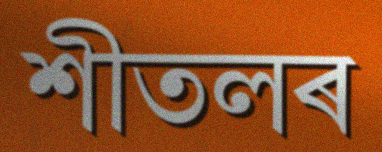
শীতলৰ